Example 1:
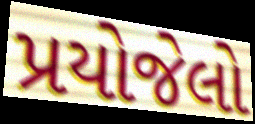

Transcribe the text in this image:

પ્રયોજેલો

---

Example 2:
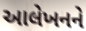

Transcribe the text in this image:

આલેખનને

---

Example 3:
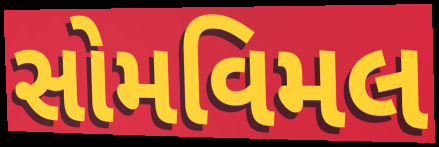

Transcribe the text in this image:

સોમવિમલ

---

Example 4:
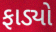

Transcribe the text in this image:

ફાડ્યો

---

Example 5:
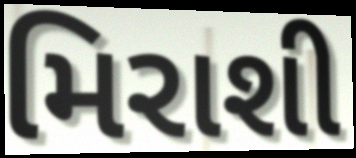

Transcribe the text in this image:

મિરાશી